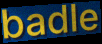
badle